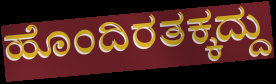
ಹೊಂದಿರತಕ್ಕದ್ದು